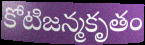
కోటిజన్మకృతం